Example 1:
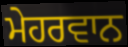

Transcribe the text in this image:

ਮੇਹਰਵਾਨ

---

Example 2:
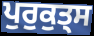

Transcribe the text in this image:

ਪੁਰੁਕੁਤ੍ਸ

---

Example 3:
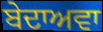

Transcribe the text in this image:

ਬੇਦਾਅਵਾ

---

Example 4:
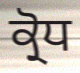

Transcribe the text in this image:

ਕ੍ਰੋਧ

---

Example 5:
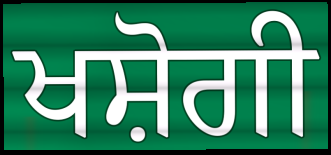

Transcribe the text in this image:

ਖਸ਼ੋਗੀ